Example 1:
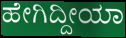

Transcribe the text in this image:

ಹೇಗಿದ್ದೀಯಾ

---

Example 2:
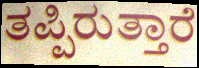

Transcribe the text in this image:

ತಪ್ಪಿರುತ್ತಾರೆ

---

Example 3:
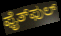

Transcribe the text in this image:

ಫೈತ್‌ಫುಲ್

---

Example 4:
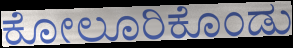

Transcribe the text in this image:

ಕೋಲೂರಿಕೊಂಡು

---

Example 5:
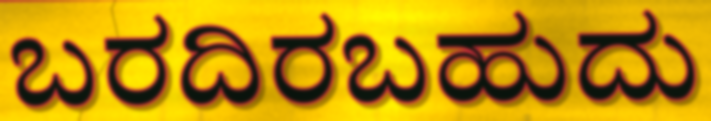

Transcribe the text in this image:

ಬರದಿರಬಹುದು